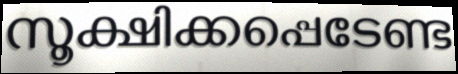
സൂക്ഷിക്കപ്പെടേണ്ട